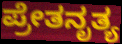
ಪ್ರೇತನೃತ್ಯ